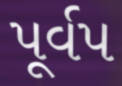
પૂર્વપ